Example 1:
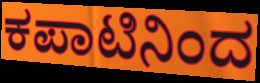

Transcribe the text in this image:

ಕಪಾಟಿನಿಂದ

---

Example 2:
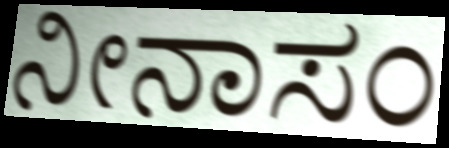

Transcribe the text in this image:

ನೀನಾಸಂ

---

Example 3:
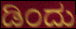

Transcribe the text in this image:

ಡಿಂದು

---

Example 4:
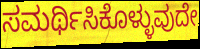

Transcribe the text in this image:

ಸಮರ್ಥಿಸಿಕೊಳ್ಳುವುದೇ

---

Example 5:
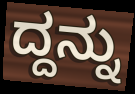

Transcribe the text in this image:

ದ್ದನ್ನು